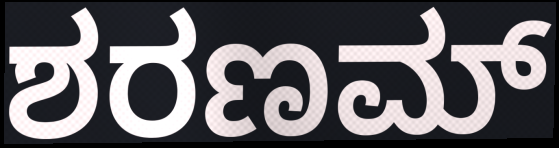
ಶರಣಮ್